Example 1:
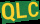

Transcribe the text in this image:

QLC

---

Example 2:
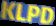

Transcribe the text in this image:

KLPD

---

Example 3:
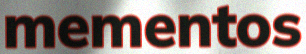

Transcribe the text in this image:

mementos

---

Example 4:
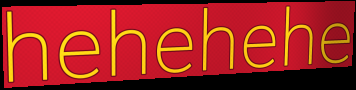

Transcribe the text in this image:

hehehehe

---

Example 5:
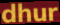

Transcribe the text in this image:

dhur